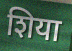
शिया